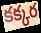
కక్కర